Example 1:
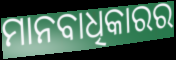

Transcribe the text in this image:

ମାନବାଧିକାରର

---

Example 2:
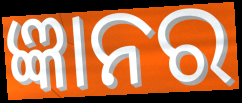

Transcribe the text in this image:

ଜ୍ଞାନର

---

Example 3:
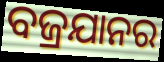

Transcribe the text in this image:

ବଜ୍ରଯାନର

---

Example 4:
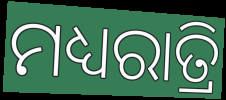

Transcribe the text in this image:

ମଧ୍ୟରାତ୍ରି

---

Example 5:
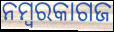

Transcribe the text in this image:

ନମ୍ବରକାଗଜ